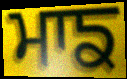
ਮਾਙ